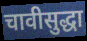
चावीसुद्धा